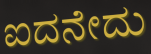
ಐದನೇದು